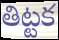
తిట్టక